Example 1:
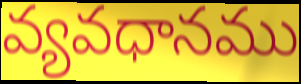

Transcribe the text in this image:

వ్యవధానము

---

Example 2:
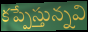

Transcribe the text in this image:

కప్పేస్తున్నవి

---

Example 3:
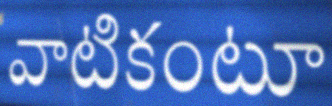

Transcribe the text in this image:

వాటికంటూ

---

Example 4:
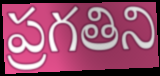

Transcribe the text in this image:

ప్రగతిని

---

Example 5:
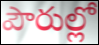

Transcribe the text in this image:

పౌరుల్లో